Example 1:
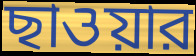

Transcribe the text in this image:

ছাওয়ার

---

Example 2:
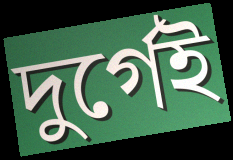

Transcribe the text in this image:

দুর্গেই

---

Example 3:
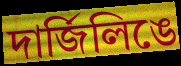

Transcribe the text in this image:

দার্জিলিঙে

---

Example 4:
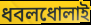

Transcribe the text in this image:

ধবলধোলাই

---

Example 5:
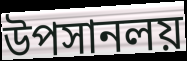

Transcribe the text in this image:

উপসানলয়